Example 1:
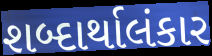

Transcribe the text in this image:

શબ્દાર્થાલંકાર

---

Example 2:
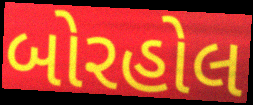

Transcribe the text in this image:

બોરહોલ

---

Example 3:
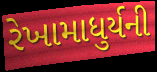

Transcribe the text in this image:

રેખામાધુર્યની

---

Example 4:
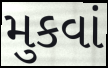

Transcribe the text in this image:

મુકવાં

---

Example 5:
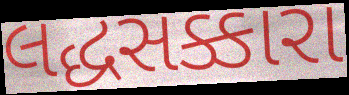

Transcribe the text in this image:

લદ્ધસક્કારા